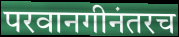
परवानगीनंतरच